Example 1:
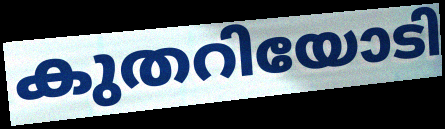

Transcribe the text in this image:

കുതറിയോടി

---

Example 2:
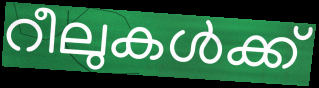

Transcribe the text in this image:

റീലുകൾക്ക്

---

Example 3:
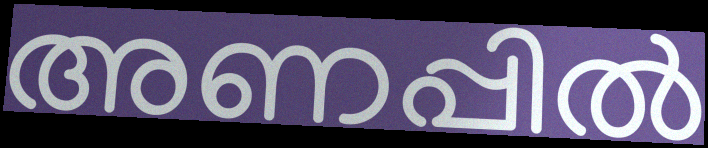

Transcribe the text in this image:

അണപ്പിൽ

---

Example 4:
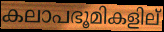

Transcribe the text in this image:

കലാപഭൂമികളില്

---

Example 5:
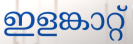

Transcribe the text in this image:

ഇളങ്കാറ്റ്